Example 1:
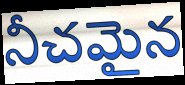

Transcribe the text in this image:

నీచమైన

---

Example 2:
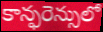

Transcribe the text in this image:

కాన్ఫరెన్సులో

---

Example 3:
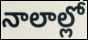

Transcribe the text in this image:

నాలాల్లో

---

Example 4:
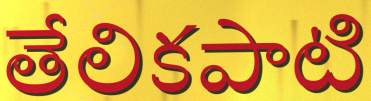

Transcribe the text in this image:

తేలికపాటి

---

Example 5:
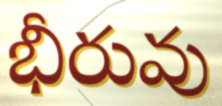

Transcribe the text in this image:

భీరువు